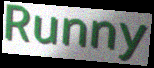
Runny